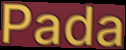
Pada